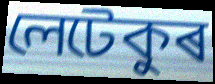
লেটেকুৰ